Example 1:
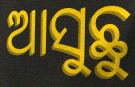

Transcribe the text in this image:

ଆସୁଛୁ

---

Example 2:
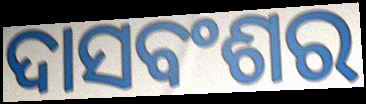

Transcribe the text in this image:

ଦାସବଂଶର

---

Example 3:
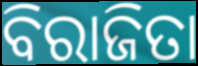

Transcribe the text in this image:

ବିରାଜିତା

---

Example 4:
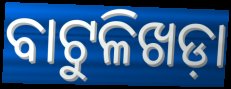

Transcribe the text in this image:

ବାଟୁଳିଖଡ଼ା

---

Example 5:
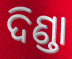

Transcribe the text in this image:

ଦିଣ୍ଡା